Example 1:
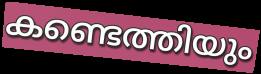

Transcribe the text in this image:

കണ്ടെത്തിയും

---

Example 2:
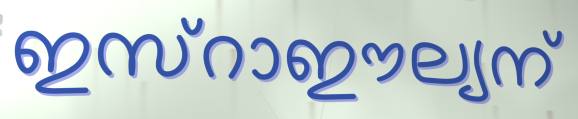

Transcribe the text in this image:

ഇസ്റാഈല്യന്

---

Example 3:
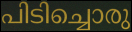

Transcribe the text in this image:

പിടിച്ചൊരു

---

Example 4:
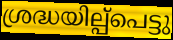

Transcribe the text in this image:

ശ്രദ്ധയില്പ്പെട്ടു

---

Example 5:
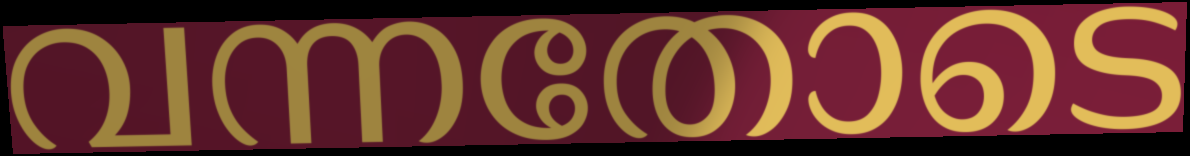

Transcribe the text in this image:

വന്നതോടെ